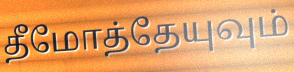
தீமோத்தேயுவும்